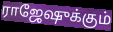
ராஜேஷுக்கும்